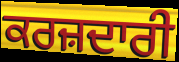
ਕਰਜ਼ਦਾਰੀ